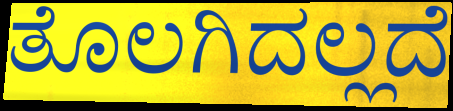
ತೊಲಗಿದಲ್ಲದೆ